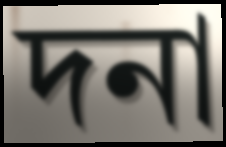
দনা